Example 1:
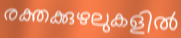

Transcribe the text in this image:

രക്തക്കുഴലുകളിൽ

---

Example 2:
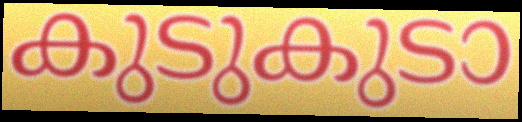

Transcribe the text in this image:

കുടുകുടാ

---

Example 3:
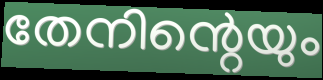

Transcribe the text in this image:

തേനിന്റെയും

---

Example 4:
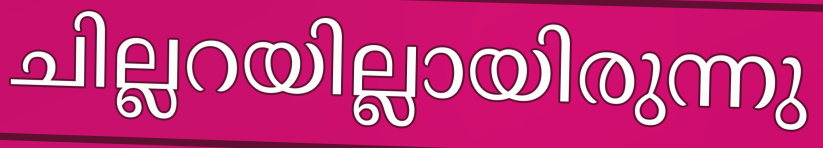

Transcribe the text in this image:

ചില്ലറയില്ലായിരുന്നു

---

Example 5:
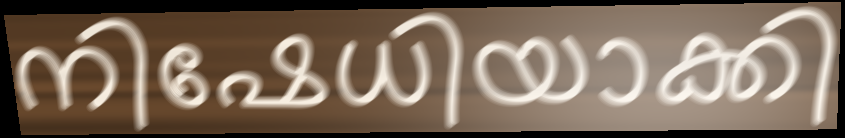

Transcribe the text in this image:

നിഷേധിയാക്കി